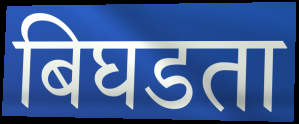
बिघडता